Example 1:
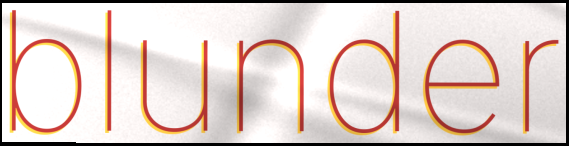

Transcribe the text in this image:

blunder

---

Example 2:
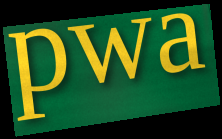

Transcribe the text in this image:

pwa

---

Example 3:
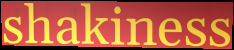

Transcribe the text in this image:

shakiness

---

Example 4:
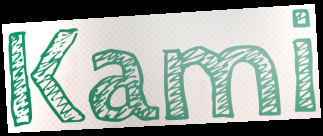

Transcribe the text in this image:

Kami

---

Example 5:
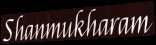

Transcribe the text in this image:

Shanmukharam